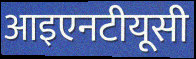
आइएनटीयूसी